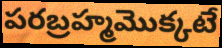
పరబ్రహ్మమొక్కటే